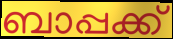
ബാപ്പക്ക്